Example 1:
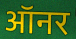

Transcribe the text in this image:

ऑनर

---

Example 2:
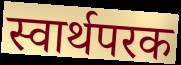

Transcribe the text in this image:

स्वार्थपरक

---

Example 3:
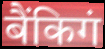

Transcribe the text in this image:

बैंकिगं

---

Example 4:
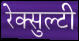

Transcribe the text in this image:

रेक्सुल्टी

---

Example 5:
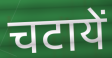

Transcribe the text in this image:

चटायें